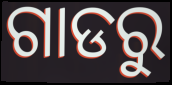
ଗାଡରୁ